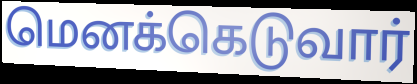
மெனக்கெடுவார்